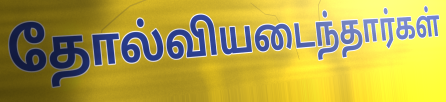
தோல்வியடைந்தார்கள்